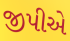
જીપીએ